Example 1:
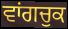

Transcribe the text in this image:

ਵਾਂਗਚੁਕ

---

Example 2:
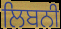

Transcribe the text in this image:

ਲਿਬਨੀ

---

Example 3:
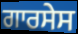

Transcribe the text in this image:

ਗਾਰਸੇਸ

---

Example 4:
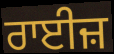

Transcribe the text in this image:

ਰਾਈਜ਼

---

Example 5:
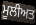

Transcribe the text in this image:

ਮੂਲੀਅਤ